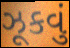
ઝૂકવું